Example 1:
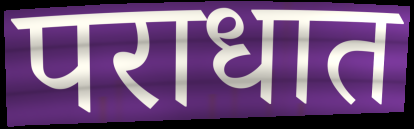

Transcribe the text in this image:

पराधात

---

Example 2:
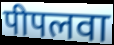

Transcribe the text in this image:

पीपलवा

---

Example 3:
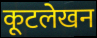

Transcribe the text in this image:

कूटलेखन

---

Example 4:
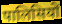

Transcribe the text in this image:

पालिसियों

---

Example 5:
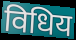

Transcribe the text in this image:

विधिय